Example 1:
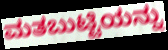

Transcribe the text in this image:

ಮತಬುಟ್ಟಿಯನ್ನು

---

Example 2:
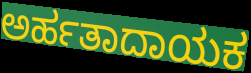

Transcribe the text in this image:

ಅರ್ಹತಾದಾಯಕ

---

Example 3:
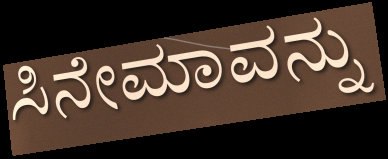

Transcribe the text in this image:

ಸಿನೇಮಾವನ್ನು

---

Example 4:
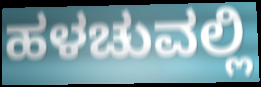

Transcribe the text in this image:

ಹಳಚುವಲ್ಲಿ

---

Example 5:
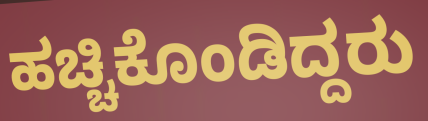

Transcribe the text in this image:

ಹಚ್ಚಿಕೊಂಡಿದ್ದರು